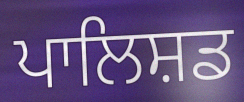
ਪਾਲਿਸ਼ਡ